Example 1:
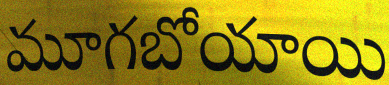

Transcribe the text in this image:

మూగబోయాయి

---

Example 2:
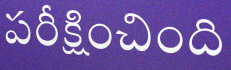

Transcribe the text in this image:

పరీక్షించింది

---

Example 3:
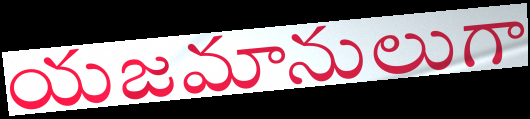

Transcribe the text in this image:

యజమానులుగా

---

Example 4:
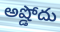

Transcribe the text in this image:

అష్డోదు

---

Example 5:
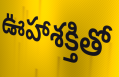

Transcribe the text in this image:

ఊహాశక్తితో